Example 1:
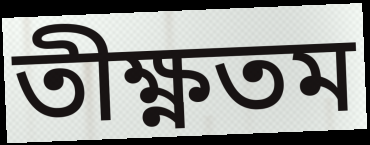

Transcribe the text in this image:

তীক্ষ্ণতম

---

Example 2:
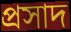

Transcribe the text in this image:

প্রসাদ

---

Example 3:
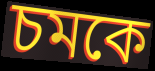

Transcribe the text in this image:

চমকে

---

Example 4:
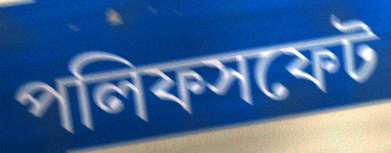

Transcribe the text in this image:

পলিফসফেট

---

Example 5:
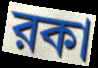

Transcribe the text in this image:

রকা